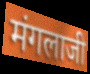
मंगलाजी